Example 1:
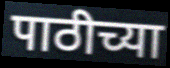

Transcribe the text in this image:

पाठीच्या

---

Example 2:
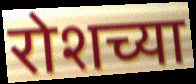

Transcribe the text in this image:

रोशच्या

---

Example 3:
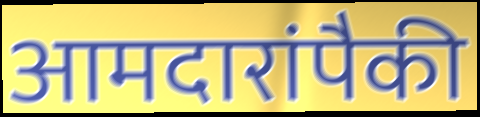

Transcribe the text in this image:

आमदारांपैकी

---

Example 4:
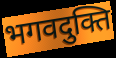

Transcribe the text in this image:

भगवदुक्ति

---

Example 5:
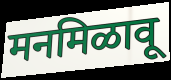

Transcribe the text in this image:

मनमिळावू